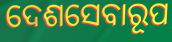
ଦେଶସେବାରୂପ